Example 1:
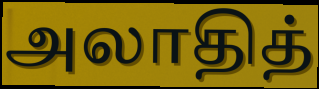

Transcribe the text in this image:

அலாதித்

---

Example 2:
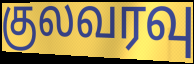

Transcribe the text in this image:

குலவரவு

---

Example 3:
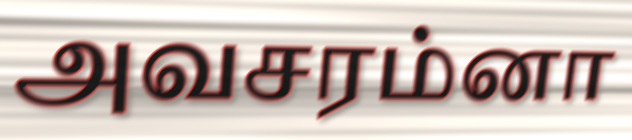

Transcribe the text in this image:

அவசரம்னா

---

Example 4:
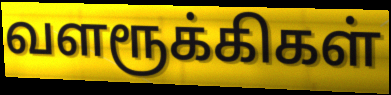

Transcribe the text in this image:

வளரூக்கிகள்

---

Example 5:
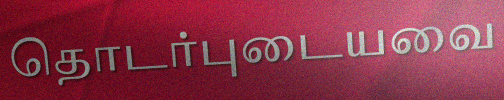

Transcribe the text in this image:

தொடர்புடையவை